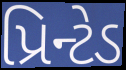
પ્રિન્ટેડ